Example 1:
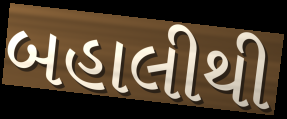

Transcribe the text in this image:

બહાલીથી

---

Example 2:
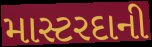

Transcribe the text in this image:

માસ્ટરદાની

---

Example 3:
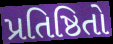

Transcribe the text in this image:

પ્રતિષ્ઠિતો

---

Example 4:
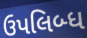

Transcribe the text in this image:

ઉપલિબ્ધ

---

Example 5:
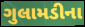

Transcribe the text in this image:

ગુલામડીના